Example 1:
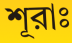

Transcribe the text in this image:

শূরাঃ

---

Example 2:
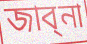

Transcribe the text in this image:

জাব্‌না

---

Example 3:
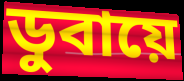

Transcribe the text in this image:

ডুবায়ে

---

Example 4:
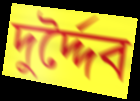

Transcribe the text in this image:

দুর্দ্দৈব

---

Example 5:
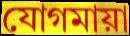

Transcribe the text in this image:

যোগমায়া